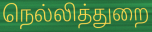
நெல்லித்துறை